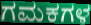
ಗಮಕಗಳ